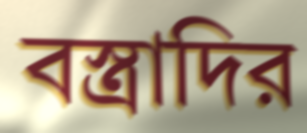
বস্ত্রাদির